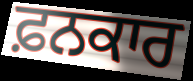
ਫ਼ਨਕਾਰ